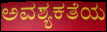
ಅವಶ್ಯಕತೆಯ